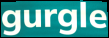
gurgle